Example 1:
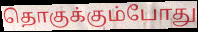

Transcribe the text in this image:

தொகுக்கும்போது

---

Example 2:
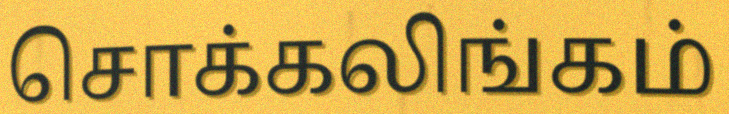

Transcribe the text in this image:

சொக்கலிங்கம்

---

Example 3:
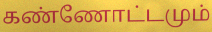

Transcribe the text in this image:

கண்ணோட்டமும்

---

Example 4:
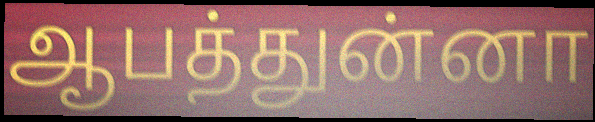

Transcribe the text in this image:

ஆபத்துன்னா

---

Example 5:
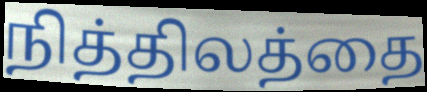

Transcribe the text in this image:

நித்திலத்தை